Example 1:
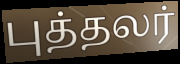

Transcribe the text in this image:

புத்தலர்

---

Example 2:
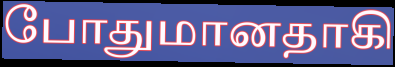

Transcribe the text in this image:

போதுமானதாகி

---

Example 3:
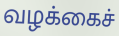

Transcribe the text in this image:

வழக்கைச்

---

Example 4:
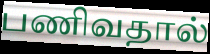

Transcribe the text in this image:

பணிவதால்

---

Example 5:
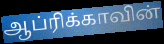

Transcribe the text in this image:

ஆப்ரிக்காவின்